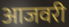
आजवरी